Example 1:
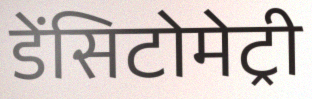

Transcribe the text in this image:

डेंसिटोमेट्री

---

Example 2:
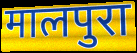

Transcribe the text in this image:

मालपुरा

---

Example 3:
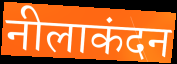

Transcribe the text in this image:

नीलाकंदन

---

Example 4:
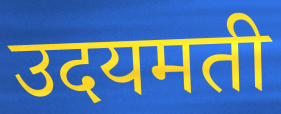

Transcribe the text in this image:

उदयमती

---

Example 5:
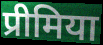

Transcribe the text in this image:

प्रीमिया